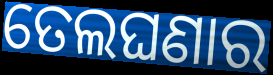
ତେଲଘଣାର